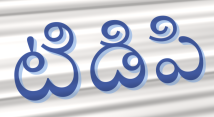
టిడిపి